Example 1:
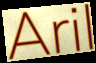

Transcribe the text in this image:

Aril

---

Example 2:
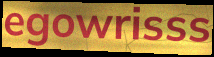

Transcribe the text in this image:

egowrisss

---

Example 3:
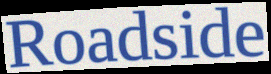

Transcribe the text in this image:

Roadside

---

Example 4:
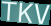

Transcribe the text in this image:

TKV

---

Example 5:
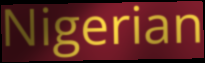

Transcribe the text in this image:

Nigerian